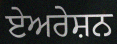
ਏਅਰੇਸ਼ਨ